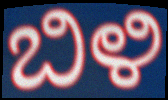
ಬಿಳಿ